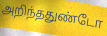
அறிந்ததுண்டோ